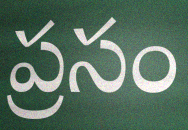
ప్రసం